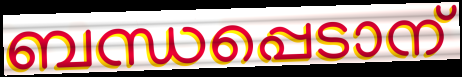
ബന്ധപ്പെടാന്